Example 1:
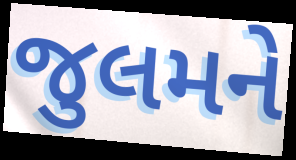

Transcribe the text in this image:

જુલમને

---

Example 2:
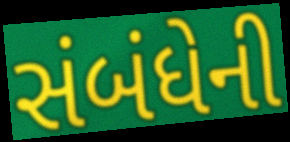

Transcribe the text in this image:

સંબંધેની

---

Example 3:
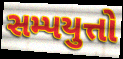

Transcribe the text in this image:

સમ્પયુત્તો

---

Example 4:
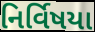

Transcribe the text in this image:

નિર્વિષયા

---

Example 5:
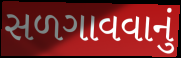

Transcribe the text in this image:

સળગાવવાનું